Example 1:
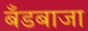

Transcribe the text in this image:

बँडबाजा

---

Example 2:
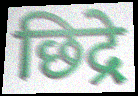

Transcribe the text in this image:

छिद्रे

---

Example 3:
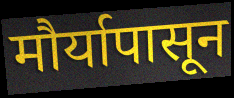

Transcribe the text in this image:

मौर्यापासून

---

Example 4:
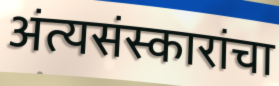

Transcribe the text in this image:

अंत्यसंस्कारांचा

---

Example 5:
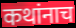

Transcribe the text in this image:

कथांनाच